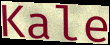
Kale